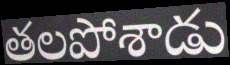
తలపోశాడు